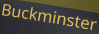
Buckminster